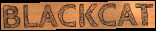
BLACKCAT